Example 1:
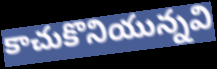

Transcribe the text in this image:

కాచుకొనియున్నవి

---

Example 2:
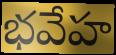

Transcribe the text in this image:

భవేహ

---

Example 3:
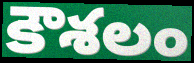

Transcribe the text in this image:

కౌశలం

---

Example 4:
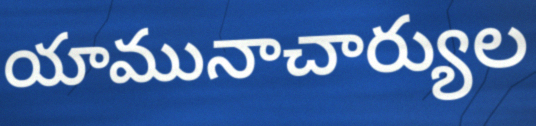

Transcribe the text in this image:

యామునాచార్యుల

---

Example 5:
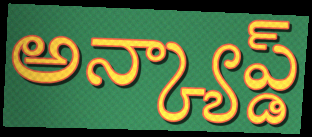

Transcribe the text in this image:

అన్క్యాప్డ్